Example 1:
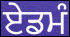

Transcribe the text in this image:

ਏਡਮੰ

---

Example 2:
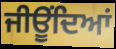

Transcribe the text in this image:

ਜੀਊਂਦਿਆਂ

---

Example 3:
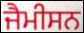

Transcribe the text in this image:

ਜੈਮੀਸਨ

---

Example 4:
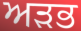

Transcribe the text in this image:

ਅੜਭ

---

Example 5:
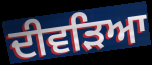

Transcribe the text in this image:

ਦੀਵੜਿਆ